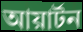
আয়ার্টন